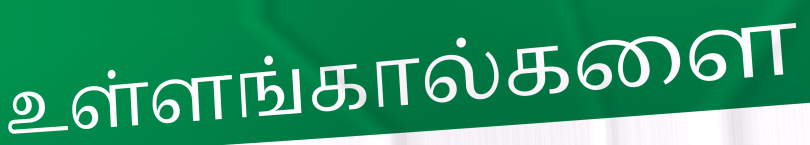
உள்ளங்கால்களை